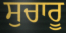
ਸੁਚਾਰੂ